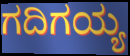
ಗದಿಗಯ್ಯ